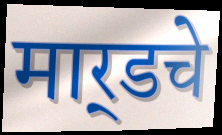
मार्डचे